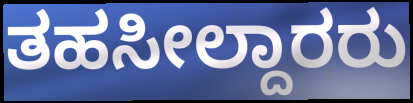
ತಹಸೀಲ್ದಾರರು